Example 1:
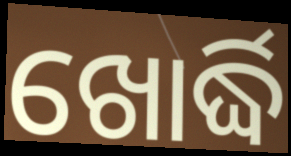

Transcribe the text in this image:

ଖୋର୍ଦ୍ଧି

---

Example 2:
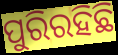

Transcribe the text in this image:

ପୁରିରହିଛି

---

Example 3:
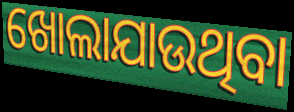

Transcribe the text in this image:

ଖୋଲାଯାଉଥିବା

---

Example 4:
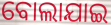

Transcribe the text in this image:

ବୋଲାଯାଇ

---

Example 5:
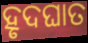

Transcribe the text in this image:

ହୃଦଘାତ